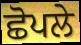
ਛੋਪਲੇ